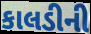
કાલડીની